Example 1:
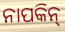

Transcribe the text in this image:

ନାପକିନ୍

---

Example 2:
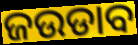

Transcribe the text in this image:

ଜଉଡାବ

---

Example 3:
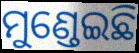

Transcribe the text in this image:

ମୁଣ୍ଡେଇଛି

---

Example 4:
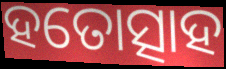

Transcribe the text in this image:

ହତୋତ୍ସାହ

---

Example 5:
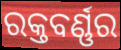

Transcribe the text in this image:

ରକ୍ତବର୍ଣ୍ଣର